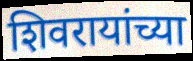
शिवरायांच्या